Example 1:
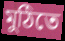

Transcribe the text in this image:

মুঠিতে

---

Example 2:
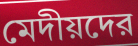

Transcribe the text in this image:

মেদীয়দের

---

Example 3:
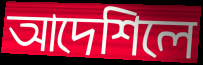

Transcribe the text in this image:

আদেশিলে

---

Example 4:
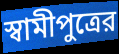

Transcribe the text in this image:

স্বামীপুত্রের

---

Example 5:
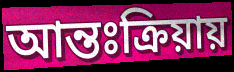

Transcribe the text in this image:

আন্তঃক্রিয়ায়